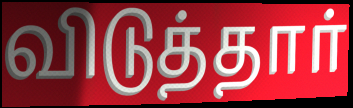
விடுத்தார்